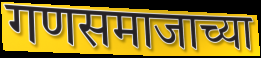
गणसमाजाच्या